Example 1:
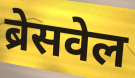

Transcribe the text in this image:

ब्रेसवेल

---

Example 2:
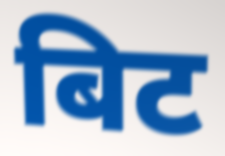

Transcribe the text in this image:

बिट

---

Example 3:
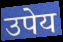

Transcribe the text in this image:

उपेय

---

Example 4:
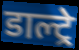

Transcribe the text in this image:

डाल्ट्रे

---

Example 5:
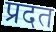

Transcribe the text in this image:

प्रदत